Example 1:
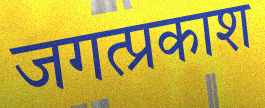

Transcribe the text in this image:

जगत्प्रकाश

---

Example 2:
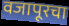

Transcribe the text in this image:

वजापूरचा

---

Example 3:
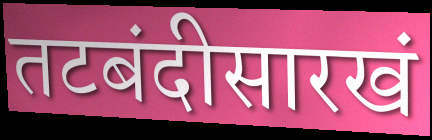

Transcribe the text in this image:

तटबंदीसारखं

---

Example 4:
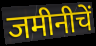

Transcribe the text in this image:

जमीनीचें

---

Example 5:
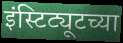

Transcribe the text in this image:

इंस्टिट्यूटच्या